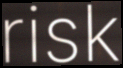
risk